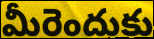
మీరెందుకు